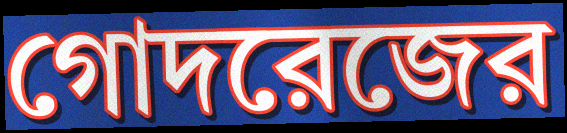
গোদরেজের